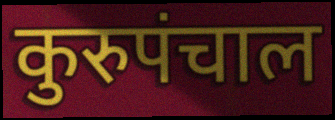
कुरुपंचाल